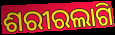
ଶରୀରଲାଗି